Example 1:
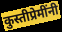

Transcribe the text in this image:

कुस्तीप्रेमींनी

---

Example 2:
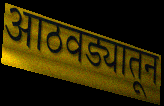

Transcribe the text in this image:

आठवड्यातून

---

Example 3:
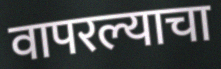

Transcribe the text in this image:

वापरल्याचा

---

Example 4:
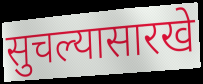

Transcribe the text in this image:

सुचल्यासारखे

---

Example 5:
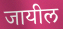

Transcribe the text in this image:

जायील